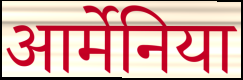
आर्मेनिया